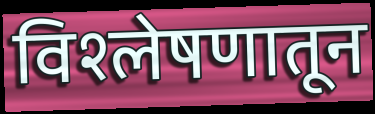
विश्लेषणातून